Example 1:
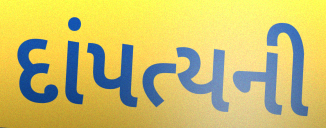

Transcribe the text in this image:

દાંપત્યની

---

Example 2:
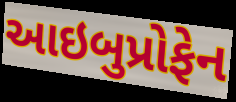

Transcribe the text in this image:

આઇબુપ્રોફેન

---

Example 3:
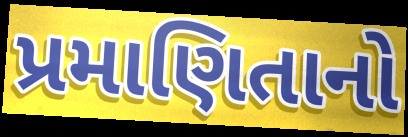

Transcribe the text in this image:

પ્રમાણિતાનો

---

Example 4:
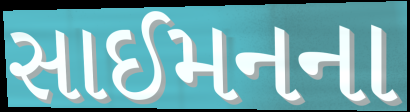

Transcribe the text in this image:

સાઈમનના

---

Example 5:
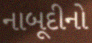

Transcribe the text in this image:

નાબૂદીનો